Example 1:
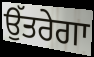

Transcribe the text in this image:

ਉੱਤਰੇਗਾ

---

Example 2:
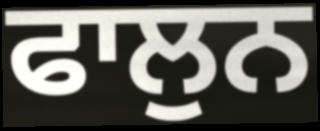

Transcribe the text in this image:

ਫਾਲੁਨ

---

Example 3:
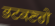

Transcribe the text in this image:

ਭਟਕਣਗੇ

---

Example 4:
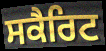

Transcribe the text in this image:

ਸਕੈਰਿਟ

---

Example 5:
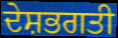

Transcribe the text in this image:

ਦੇਸ਼ਭਗਤੀ